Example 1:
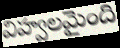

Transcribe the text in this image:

విహ్వలమైంది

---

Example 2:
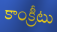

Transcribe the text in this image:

కాంక్రీటు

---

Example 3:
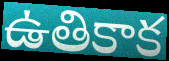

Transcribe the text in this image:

ఉతికాక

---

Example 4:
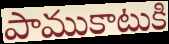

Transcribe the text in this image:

పాముకాటుకి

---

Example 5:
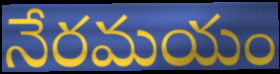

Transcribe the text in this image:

నేరమయం